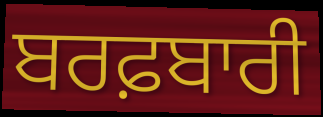
ਬਰਫ਼ਬਾਰੀ